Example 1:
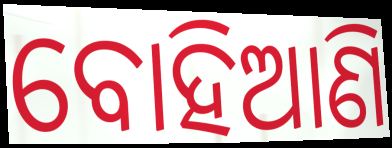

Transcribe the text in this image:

ବୋହିଆଣି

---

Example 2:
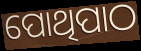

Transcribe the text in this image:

ପୋଥିପାଠ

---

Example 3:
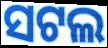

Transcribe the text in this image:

ସଟଲ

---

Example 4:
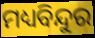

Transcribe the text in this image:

ମଧ୍ୟବିନ୍ଦୁର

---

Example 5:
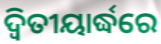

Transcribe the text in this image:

ଦ୍ୱିତୀୟାର୍ଦ୍ଧରେ